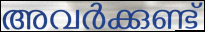
അവർക്കുണ്ട്